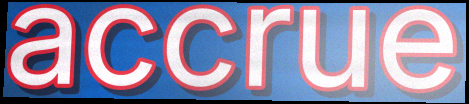
accrue